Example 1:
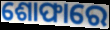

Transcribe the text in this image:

ଶୋଫାରେ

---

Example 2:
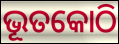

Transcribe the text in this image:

ଭୂତକୋଠି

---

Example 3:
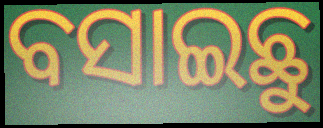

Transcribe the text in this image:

ବସାଇଛୁ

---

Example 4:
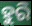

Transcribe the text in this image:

ହୁରି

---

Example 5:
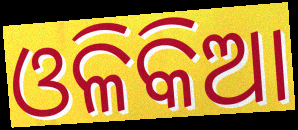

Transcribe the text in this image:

ଓଳିକିଆ